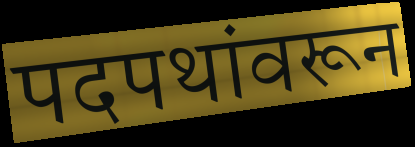
पदपथांवरून